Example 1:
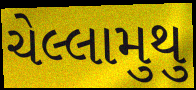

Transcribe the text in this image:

ચેલ્લામુથુ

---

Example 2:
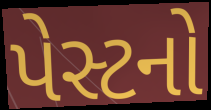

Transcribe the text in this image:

પેસ્ટનો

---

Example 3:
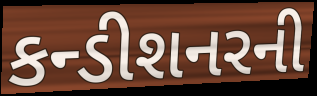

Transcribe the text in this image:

કન્ડીશનરની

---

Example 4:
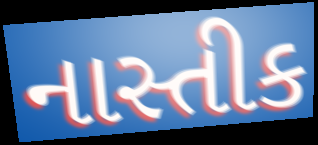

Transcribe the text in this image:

નાસ્તીક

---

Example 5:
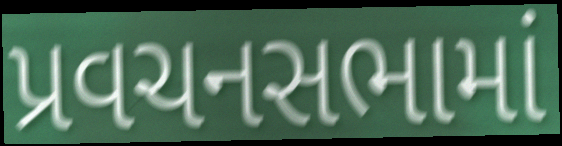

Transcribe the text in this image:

પ્રવચનસભામાં